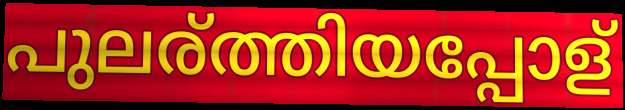
പുലര്ത്തിയപ്പോള്